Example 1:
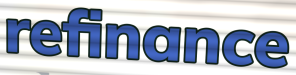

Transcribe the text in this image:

refinance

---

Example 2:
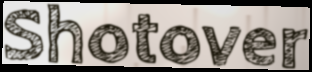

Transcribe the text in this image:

Shotover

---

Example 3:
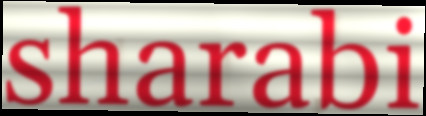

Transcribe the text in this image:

sharabi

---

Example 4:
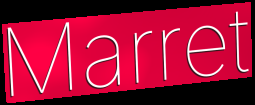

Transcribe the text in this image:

Marret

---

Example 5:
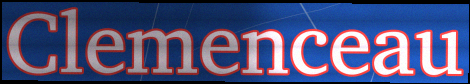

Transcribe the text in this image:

Clemenceau